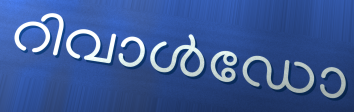
റിവാൾഡോ